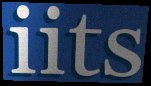
iits